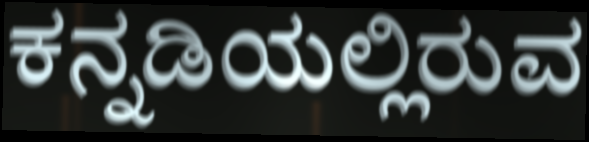
ಕನ್ನಡಿಯಲ್ಲಿರುವ